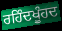
ਰਹਿੰਦਖੂੰਹਦ